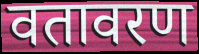
वतावरण